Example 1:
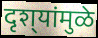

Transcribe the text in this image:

दृश्यांमुळे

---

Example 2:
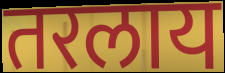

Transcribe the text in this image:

तरलाय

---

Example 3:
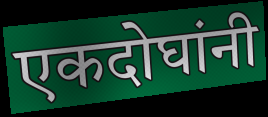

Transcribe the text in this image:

एकदोघांनी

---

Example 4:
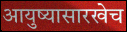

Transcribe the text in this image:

आयुष्यासारखेच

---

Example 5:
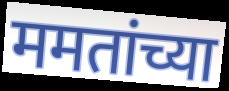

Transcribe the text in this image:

ममतांच्या